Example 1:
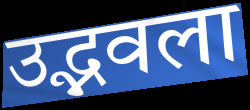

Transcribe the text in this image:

उद्भवला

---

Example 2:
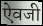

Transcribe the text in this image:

ऐवजी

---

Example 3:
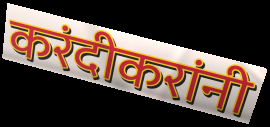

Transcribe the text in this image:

करंदीकरांनी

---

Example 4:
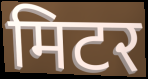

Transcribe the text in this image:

मिटर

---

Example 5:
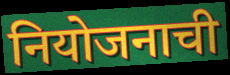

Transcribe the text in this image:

नियोजनाची